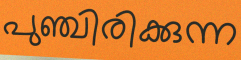
പുഞ്ചിരിക്കുന്ന